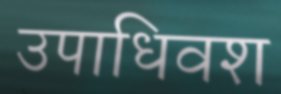
उपाधिवश